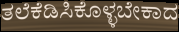
ತಲೆಕೆಡಿಸಿಕೊಳ್ಳಬೇಕಾದ